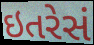
ઇતરેસં